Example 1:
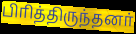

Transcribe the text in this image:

பிரித்திருந்தனர்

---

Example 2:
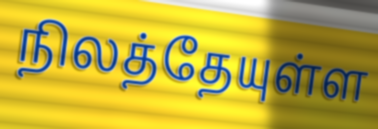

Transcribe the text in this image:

நிலத்தேயுள்ள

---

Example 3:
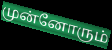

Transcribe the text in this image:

முன்னோரும்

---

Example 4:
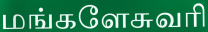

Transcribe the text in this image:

மங்களேசுவரி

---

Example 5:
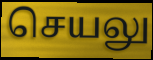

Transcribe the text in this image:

செயலு